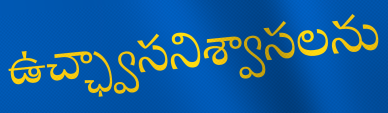
ఉచ్ఛ్వాసనిశ్వాసలను